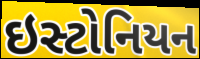
ઇસ્ટોનિયન